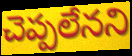
చెప్పలేనని